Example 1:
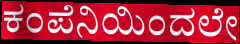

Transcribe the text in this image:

ಕಂಪೆನಿಯಿಂದಲೇ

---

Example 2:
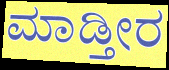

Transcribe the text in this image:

ಮಾಡ್ತೀರ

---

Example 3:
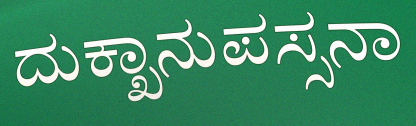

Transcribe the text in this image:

ದುಕ್ಖಾನುಪಸ್ಸನಾ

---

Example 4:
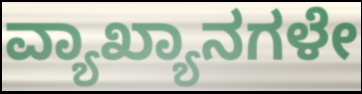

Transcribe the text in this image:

ವ್ಯಾಖ್ಯಾನಗಳೇ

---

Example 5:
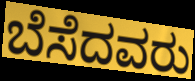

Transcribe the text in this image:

ಬೆಸೆದವರು